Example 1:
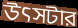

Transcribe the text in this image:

উৎসটার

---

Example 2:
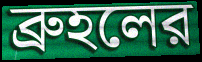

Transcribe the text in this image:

ব্রুহলের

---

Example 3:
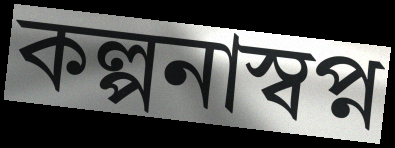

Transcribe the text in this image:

কল্পনাস্বপ্ন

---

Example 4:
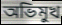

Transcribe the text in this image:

অভিমুখ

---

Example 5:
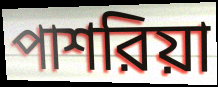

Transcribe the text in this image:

পাশরিয়া